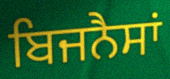
ਬਿਜਨੈਸਾਂ